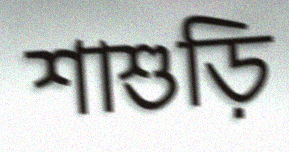
শাশুড়ি